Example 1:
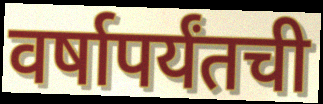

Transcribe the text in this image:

वर्षापर्यंतची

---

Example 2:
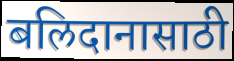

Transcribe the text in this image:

बलिदानासाठी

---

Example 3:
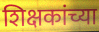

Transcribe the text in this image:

शिक्षकांच्‍या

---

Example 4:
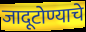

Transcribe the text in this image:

जादूटोण्याचे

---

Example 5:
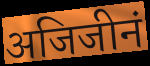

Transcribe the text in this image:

अजिजीनं